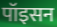
पॉइसन